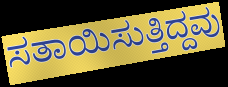
ಸತಾಯಿಸುತ್ತಿದ್ದವು